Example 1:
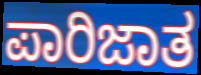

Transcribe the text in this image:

ಪಾರಿಜಾತ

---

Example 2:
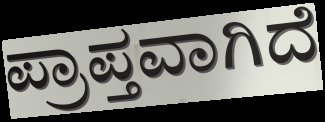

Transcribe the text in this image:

ಪ್ರಾಪ್ತವಾಗಿದೆ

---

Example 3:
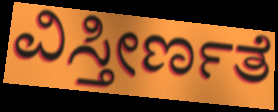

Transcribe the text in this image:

ವಿಸ್ತೀರ್ಣತೆ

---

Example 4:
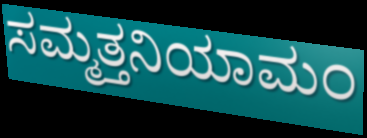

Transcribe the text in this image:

ಸಮ್ಮತ್ತನಿಯಾಮಂ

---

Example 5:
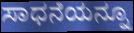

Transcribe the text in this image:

ಸಾಧನೆಯನ್ನೂ